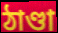
ঠাণ্ডা